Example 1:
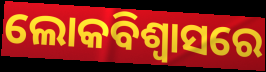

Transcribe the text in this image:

ଲୋକବିଶ୍ୱାସରେ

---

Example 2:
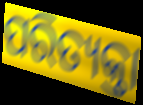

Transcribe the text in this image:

ପରିତ୍ୟକ୍ତା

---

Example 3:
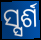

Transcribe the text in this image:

ସ୍ସର୍ଶ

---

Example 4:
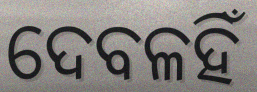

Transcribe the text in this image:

ଦେବଳହିଁ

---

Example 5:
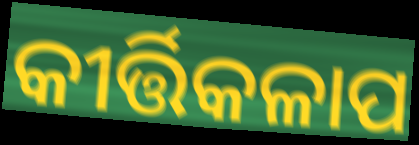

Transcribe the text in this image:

କୀର୍ତ୍ତିକଳାପ